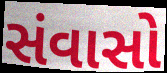
સંવાસો